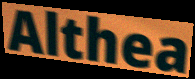
Althea